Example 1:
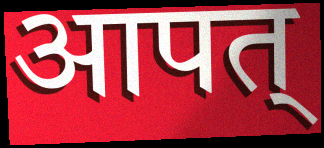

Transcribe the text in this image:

आपत्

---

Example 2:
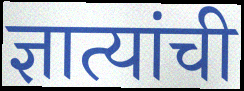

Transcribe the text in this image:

ज्ञात्यांची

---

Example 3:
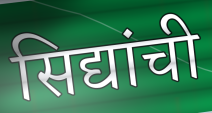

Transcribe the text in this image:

सिद्यांची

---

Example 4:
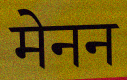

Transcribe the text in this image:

मेनन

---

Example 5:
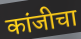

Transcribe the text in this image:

कांजीचा